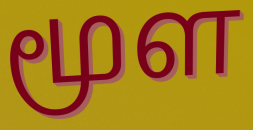
மூள